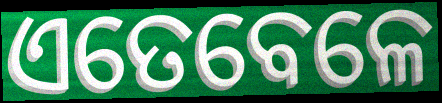
ଏତେବେଳେ